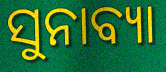
ସୁନାବ୍ୟା